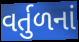
વર્તુળનાં